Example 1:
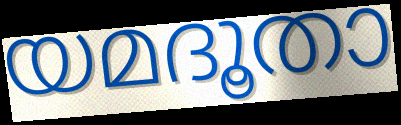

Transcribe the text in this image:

യമദൂതാ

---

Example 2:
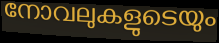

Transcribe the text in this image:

നോവലുകളുടെയും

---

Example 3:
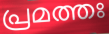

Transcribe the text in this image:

പ്രമത്തഃ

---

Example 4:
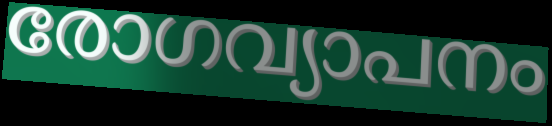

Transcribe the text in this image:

രോഗവ്യാപനം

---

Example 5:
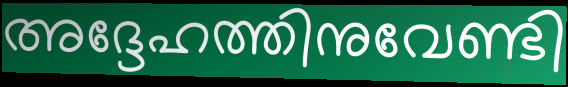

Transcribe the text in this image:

അദ്ദേഹത്തിനുവേണ്ടി